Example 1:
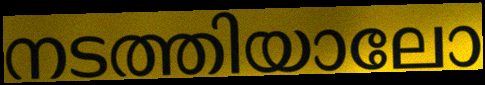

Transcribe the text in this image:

നടത്തിയാലോ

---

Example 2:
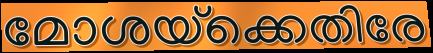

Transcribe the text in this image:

മോശയ്‌ക്കെതിരേ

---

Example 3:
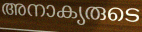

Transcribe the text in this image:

അനാക്യരുടെ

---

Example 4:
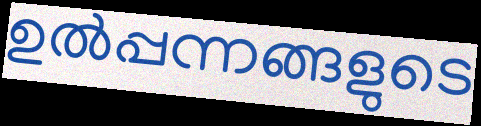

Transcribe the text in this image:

ഉൽപ്പന്നങ്ങളുടെ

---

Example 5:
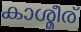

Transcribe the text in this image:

കാശ്മീര്